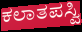
ಕಲಾತಪಸ್ವಿ